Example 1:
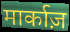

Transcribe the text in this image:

मार्काज़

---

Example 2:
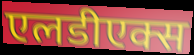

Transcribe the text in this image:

एलडीएक्स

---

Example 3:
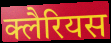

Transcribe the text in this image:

क्लैरियस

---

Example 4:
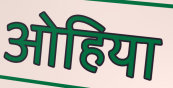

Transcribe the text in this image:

ओहिया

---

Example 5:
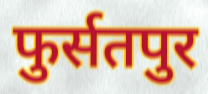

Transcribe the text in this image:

फुर्सतपुर